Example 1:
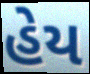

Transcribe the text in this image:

હેય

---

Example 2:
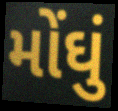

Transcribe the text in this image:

મોંઘું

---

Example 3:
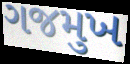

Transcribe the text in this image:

ગજમુખ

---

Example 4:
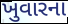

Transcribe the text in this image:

ખુવારના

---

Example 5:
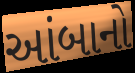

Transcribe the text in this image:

આંબાનો